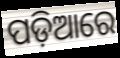
ପଡ଼ିଆରେ